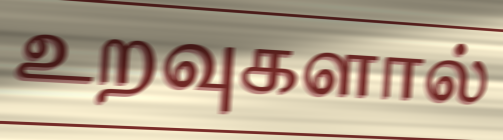
உறவுகளால்